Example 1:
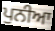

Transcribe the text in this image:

ਪੁਨੀਆ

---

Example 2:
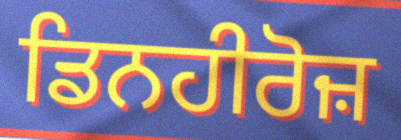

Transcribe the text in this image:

ਡਿਨਹੀਰੋਜ਼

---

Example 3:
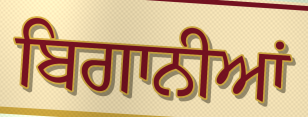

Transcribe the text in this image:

ਬਿਗਾਨੀਆਂ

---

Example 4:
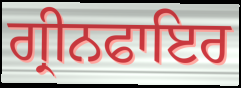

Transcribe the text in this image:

ਗ੍ਰੀਨਫਾਇਰ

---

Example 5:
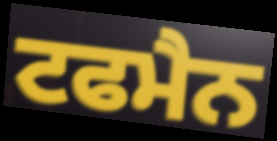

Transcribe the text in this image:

ਟਫਮੈਨ